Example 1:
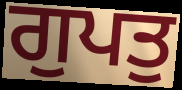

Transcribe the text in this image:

ਗੁਪਤੁ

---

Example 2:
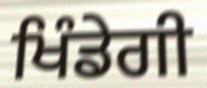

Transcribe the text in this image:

ਖਿੰਡੇਗੀ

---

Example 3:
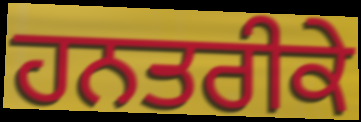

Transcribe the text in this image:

ਹਨਤਰੀਕੇ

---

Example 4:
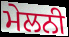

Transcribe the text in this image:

ਮੇਲਨੀ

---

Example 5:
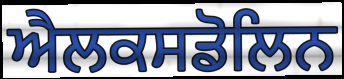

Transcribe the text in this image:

ਐਲਕਸਡੋਲਿਨ